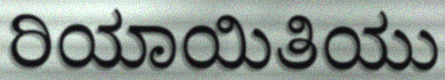
ರಿಯಾಯಿತಿಯು